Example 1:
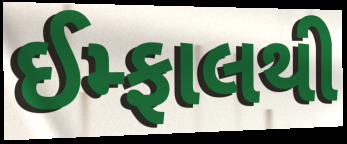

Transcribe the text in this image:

ઈમ્ફાલથી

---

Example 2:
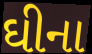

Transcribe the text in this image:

ઘીના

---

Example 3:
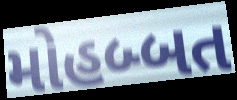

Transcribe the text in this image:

મોહબ્બત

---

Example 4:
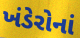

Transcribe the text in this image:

ખંડેરોનાં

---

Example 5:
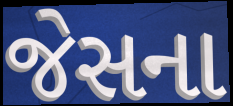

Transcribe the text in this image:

જેસના